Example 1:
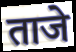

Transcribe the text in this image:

ताजे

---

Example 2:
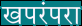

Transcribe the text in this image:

खपरंपरा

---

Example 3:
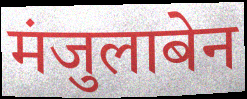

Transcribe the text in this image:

मंजुलाबेन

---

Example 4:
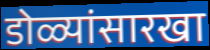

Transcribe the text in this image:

डोळ्यांसारखा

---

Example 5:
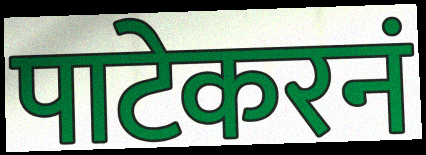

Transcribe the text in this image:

पाटेकरनं